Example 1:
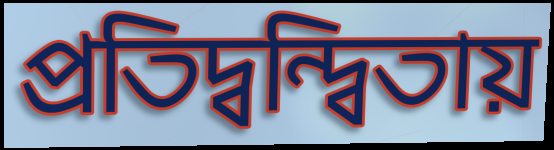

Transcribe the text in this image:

প্রতিদ্বন্দ্বিতায়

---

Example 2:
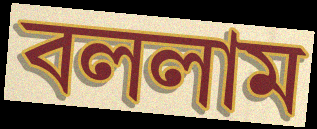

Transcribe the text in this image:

বললাম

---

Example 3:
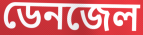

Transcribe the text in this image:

ডেনজেল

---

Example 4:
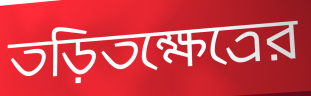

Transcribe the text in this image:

তড়িতক্ষেত্রের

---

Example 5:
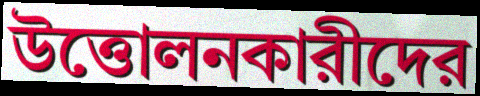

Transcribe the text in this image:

উত্তোলনকারীদের